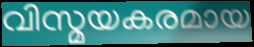
വിസ്മയകരമായ